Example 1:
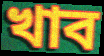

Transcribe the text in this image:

খাব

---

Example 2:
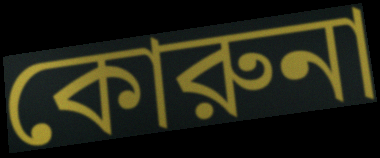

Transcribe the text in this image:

কোরুনা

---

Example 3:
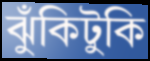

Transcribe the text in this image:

ঝুঁকিটুকি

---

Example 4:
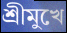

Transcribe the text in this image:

শ্রীমুখে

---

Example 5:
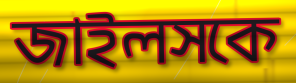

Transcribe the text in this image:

জাইলসকে